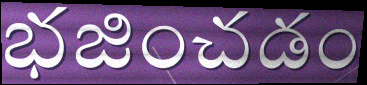
భజించడం